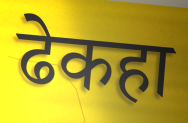
ढेकहा